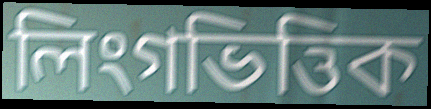
লিংগভিত্তিক